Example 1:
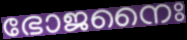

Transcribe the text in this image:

ഭോജനൈഃ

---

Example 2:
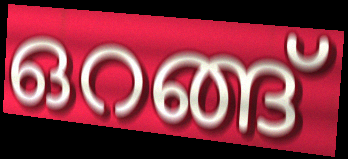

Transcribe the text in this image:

ഒറങ്ങ്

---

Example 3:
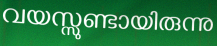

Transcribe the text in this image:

വയസ്സുണ്ടായിരുന്നു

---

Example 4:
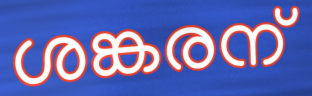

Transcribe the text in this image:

ശങ്കരന്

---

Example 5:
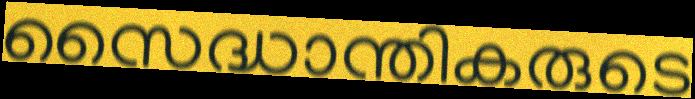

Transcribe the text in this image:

സൈദ്ധാന്തികരുടെ